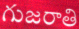
గుజరాతి